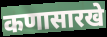
कणासारखे